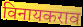
विनायकराव